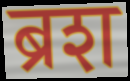
ब्रश